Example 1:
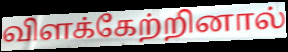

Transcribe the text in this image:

விளக்கேற்றினால்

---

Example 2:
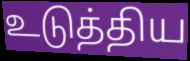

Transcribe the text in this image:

உடுத்திய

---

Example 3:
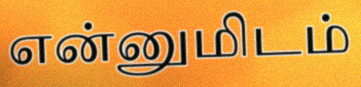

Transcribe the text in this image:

என்னுமிடம்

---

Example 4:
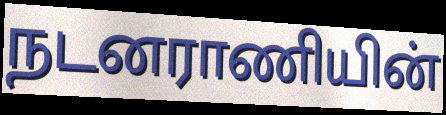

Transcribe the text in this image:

நடனராணியின்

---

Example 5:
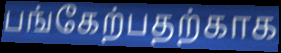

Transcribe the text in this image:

பங்கேற்பதற்காக